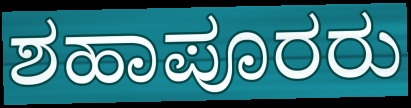
ಶಹಾಪೂರರು